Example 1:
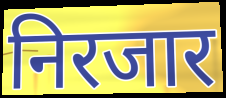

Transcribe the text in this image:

निरजार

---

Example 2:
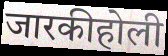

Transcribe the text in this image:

जारकीहोली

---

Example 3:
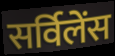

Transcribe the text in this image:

सर्विलेंस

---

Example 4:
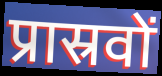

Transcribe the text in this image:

प्रास्रवों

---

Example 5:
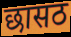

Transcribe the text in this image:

छासठ